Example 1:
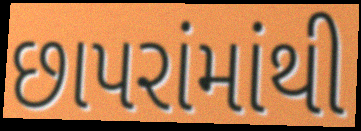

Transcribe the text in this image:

છાપરાંમાંથી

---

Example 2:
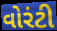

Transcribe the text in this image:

વોરંટી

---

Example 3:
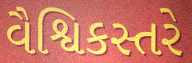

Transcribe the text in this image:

વૈશ્વિકસ્તરે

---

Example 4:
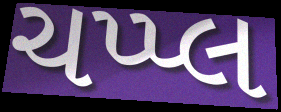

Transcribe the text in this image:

ચપ્પ્લ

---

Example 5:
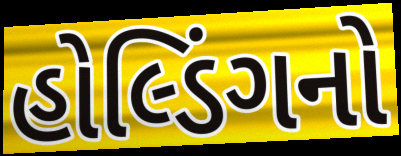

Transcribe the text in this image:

હોલ્ડિંગનો